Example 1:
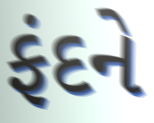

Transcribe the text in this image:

ફંદને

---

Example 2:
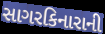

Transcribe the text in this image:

સાગરકિનારાની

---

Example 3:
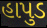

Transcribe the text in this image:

હાપુડ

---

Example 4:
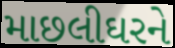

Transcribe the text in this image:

માછલીઘરને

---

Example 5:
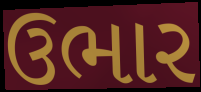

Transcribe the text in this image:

ઉભાર